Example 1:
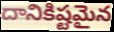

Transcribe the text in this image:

దానికిష్టమైన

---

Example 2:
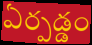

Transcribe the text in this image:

ఏర్పడ్డం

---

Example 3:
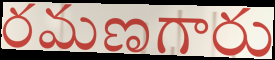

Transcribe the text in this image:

రమణగారు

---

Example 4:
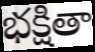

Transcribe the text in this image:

భక్షితా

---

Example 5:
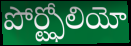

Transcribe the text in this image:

పోర్ట్ఫోలియో